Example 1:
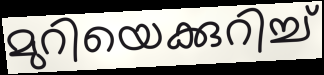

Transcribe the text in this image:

മുറിയെക്കുറിച്ച്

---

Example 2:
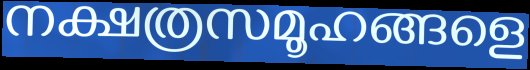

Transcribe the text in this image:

നക്ഷത്രസമൂഹങ്ങളെ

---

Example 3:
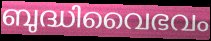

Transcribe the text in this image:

ബുദ്ധിവൈഭവം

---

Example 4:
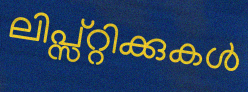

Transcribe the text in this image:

ലിപ്സ്റ്റിക്കുകൾ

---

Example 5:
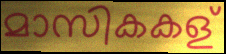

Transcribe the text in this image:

മാസികകള്